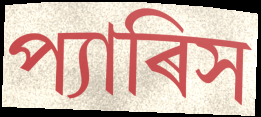
প্যাৰিস